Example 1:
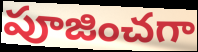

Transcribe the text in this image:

పూజించగా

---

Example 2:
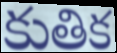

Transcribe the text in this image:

కుతిక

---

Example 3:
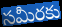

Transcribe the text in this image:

సమీరకు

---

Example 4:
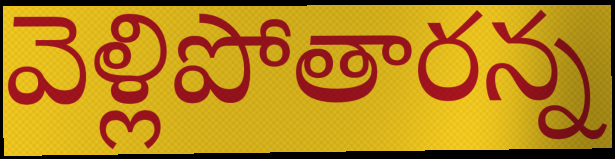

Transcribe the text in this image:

వెళ్లిపోతారన్న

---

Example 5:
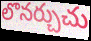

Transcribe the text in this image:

లొనర్చుచు